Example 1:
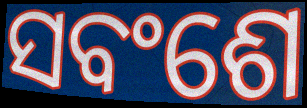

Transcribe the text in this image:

ସବଂଶେ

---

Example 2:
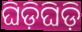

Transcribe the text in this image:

ଘିଡ଼ିଘିଡ଼ି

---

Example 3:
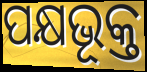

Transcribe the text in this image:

ପକ୍ଷଭୂକ୍ତ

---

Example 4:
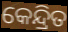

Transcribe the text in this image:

କେନ୍ଦ୍ରିତ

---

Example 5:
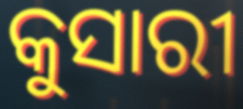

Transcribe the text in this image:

କୁସାରୀ